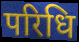
परिधि